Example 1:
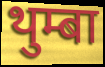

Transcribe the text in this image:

थुम्बा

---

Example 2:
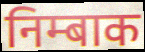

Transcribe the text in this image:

निम्बाक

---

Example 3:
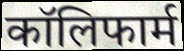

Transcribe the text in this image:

कॉलिफार्म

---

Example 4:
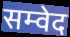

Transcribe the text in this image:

सम्वेद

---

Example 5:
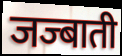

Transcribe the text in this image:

जज्‍बाती